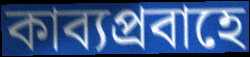
কাব্যপ্রবাহে